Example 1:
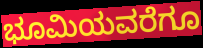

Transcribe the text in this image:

ಭೂಮಿಯವರೆಗೂ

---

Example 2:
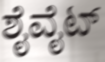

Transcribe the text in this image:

ಶೈವೈಟ್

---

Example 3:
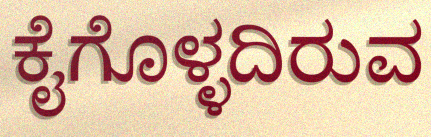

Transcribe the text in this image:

ಕೈಗೊಳ್ಳದಿರುವ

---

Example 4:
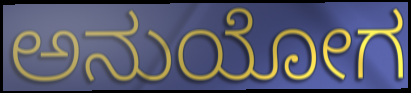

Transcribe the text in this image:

ಅನುಯೋಗ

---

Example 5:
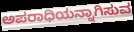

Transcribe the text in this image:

ಅಪರಾಧಿಯನ್ನಾಗಿಸುವ